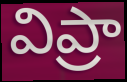
విప్రా